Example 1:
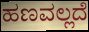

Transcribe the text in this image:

ಹಣವಲ್ಲದೆ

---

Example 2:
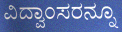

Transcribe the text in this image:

ವಿದ್ವಾಂಸರನ್ನೂ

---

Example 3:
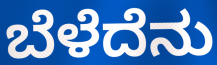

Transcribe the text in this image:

ಬೆಳೆದೆನು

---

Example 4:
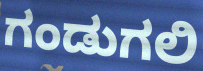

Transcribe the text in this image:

ಗಂಡುಗಲಿ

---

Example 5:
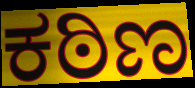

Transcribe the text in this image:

ಕಠಿಣ